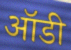
ऑडी